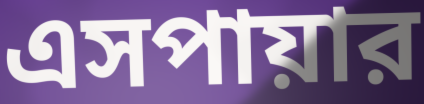
এসপায়ার